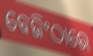
ବେଜିଂଠାରେ